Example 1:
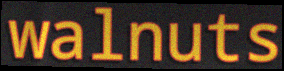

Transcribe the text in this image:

walnuts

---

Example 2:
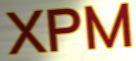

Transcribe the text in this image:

XPM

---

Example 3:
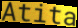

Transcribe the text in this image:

Atita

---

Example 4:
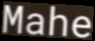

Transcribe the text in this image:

Mahe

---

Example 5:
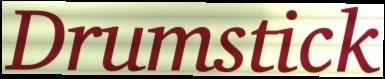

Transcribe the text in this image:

Drumstick